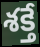
శక్తే